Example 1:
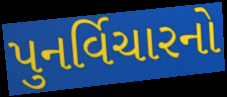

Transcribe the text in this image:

પુનર્વિચારનો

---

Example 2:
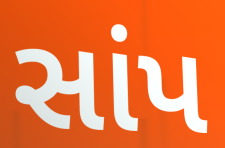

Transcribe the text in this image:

સાંપ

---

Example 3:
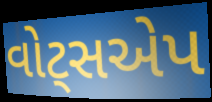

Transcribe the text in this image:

વોટ્સએપ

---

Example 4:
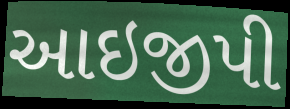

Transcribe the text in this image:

આઇજીપી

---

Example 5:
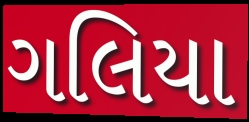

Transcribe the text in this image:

ગલિયા